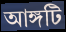
আঙ্গটি